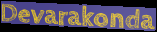
Devarakonda